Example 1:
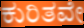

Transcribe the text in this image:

ಕುರಿತವೇ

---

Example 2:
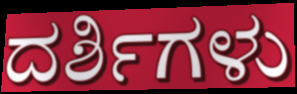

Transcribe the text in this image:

ದರ್ಶಿಗಳು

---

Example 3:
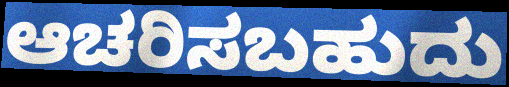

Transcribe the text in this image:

ಆಚರಿಸಬಹುದು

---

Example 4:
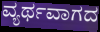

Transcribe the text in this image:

ವ್ಯರ್ಥವಾಗದ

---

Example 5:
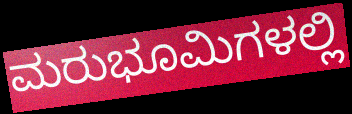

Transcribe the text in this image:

ಮರುಭೂಮಿಗಳಲ್ಲಿ